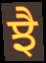
ਝੈ